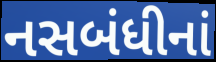
નસબંધીનાં